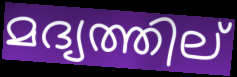
മദ്യത്തില്